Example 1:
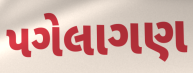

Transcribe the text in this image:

પગેલાગણ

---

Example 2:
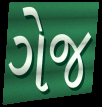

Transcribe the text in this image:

ગેજ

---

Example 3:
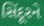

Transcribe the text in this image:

સિંદૂરને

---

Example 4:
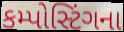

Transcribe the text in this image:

કમ્પોસ્ટિંગના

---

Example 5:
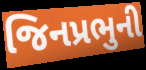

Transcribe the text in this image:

જિનપ્રભુની